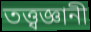
তত্ত্বজ্ঞানী